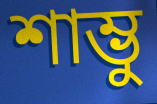
শাম্ভু